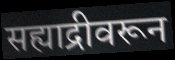
सह्याद्रीवरून